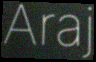
Araj